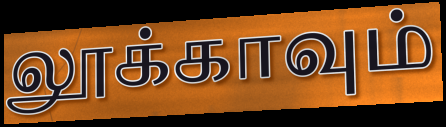
லூக்காவும்